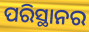
ପରିସ୍ଥାନର